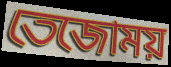
তেজোময়